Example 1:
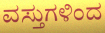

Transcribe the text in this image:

ವಸ್ತುಗಳಿಂದ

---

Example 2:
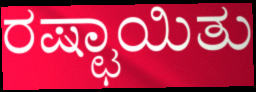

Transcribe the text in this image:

ರಷ್ಟಾಯಿತು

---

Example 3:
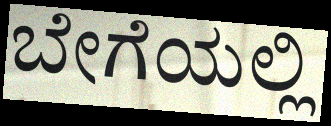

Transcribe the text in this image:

ಬೇಗೆಯಲ್ಲಿ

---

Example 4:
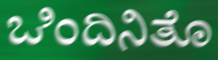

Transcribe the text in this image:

ಒಿಂದಿನಿತೊ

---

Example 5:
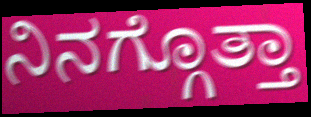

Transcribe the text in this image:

ನಿನಗ್ಗೊತ್ತಾ